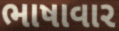
ભાષાવાર